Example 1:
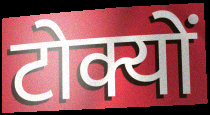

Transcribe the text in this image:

टोक्यों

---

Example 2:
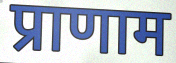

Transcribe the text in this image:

प्राणाम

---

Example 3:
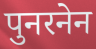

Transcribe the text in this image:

पुनरनेन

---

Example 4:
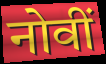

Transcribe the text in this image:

नोवीं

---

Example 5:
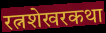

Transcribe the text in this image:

रत्नशेखरकथा